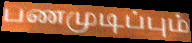
பணமுடிப்பும்